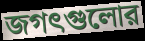
জগৎগুলোর